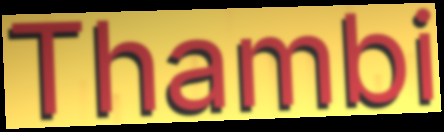
Thambi